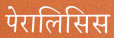
पेरालिसिस